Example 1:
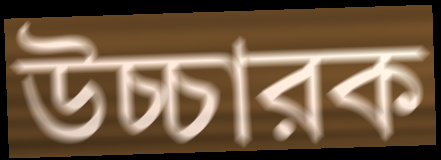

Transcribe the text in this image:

উচ্চারক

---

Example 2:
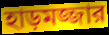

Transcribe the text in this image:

হাড়মজ্জার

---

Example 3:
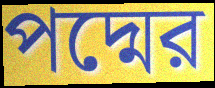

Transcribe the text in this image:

পদ্মের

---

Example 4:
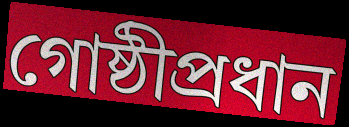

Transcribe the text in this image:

গোষ্ঠীপ্রধান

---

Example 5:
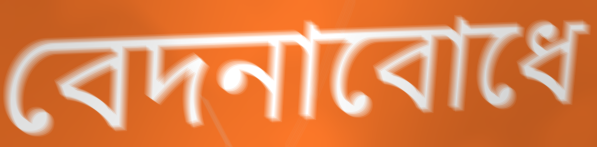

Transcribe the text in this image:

বেদনাবোধে